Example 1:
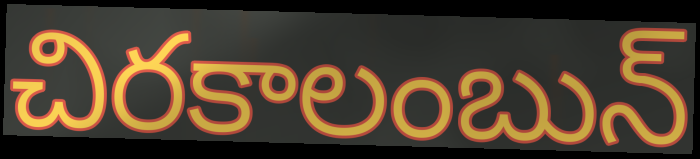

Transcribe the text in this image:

చిరకాలంబున్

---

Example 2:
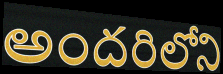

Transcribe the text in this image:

అందరిలోని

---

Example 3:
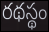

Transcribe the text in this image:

రథస్థం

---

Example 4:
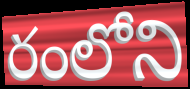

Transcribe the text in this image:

రంలోని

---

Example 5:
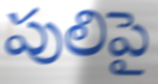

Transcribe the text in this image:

పులిపై